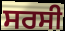
ਸਰਸੀ